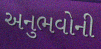
અનુભવોની